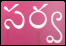
సర్వ